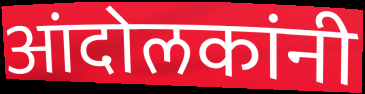
आंदोलकांनी